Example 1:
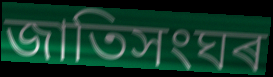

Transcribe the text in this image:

জাতিসংঘৰ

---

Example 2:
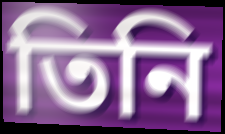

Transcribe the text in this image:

তিনি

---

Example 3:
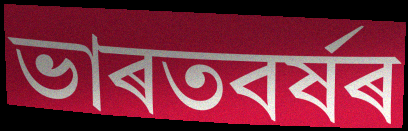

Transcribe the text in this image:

ভাৰতবৰ্ষৰ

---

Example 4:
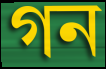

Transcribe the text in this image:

গন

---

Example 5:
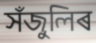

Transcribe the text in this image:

সঁজুলিৰ